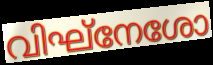
വിഘ്നേശോ